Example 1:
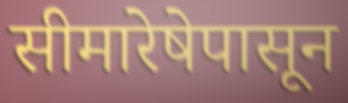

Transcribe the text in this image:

सीमारेषेपासून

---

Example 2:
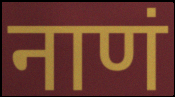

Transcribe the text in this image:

नाणं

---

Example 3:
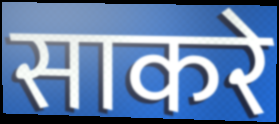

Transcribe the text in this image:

साकरे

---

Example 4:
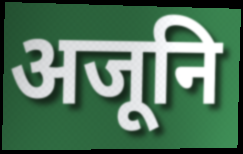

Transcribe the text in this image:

अजूनि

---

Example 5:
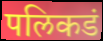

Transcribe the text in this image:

पलिकडं